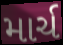
માર્ચ